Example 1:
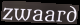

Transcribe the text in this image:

zwaard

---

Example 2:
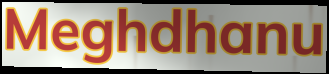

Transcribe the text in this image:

Meghdhanu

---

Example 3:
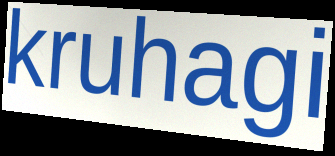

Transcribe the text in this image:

kruhagi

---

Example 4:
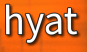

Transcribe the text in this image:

hyat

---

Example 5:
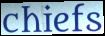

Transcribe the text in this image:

chiefs